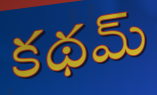
కథమ్